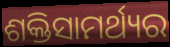
ଶକ୍ତିସାମର୍ଥ୍ୟର